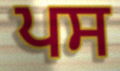
ਪਸ